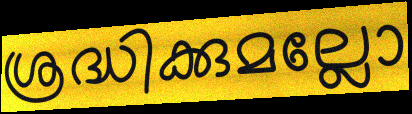
ശ്രദ്ധിക്കുമല്ലോ